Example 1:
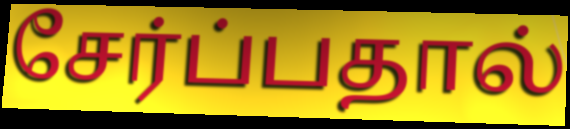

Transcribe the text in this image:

சேர்ப்பதால்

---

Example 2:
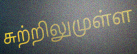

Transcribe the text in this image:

சுற்றிலுமுள்ள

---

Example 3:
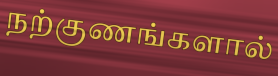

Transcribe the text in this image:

நற்குணங்களால்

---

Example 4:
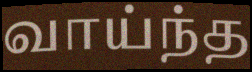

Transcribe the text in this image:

வாய்ந்த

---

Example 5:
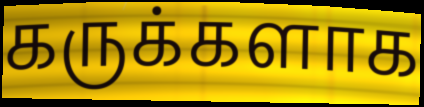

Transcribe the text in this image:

கருக்களாக